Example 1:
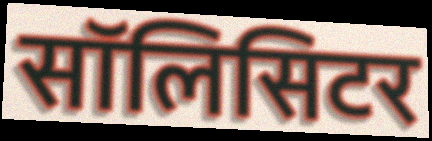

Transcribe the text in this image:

सॉलिसिटर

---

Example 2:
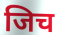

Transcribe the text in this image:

जिच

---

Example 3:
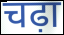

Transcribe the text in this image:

चढ़ा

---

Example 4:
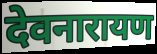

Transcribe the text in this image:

देवनारायण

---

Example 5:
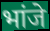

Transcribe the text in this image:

भांजे